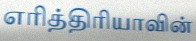
எரித்திரியாவின்